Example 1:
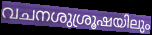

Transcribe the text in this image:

വചനശുശ്രൂഷയിലും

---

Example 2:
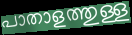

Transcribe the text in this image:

പാതാളത്തുള്ള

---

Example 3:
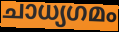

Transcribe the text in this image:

ചാധ്യഗമം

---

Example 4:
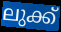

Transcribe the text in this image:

ലുക്ക്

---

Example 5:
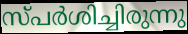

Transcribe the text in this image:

സ്പർശിച്ചിരുന്നു